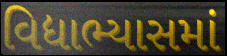
વિદ્યાભ્યાસમાં